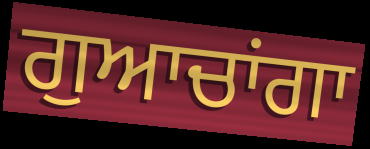
ਗੁਆਚਾਂਗਾ